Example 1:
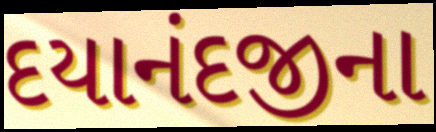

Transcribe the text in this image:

દયાનંદજીના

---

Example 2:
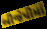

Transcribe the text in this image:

બીજેપીમાં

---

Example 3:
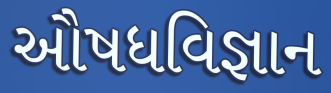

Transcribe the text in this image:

ઔષધવિજ્ઞાન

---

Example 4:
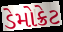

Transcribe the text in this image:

ડેમોક્રેટ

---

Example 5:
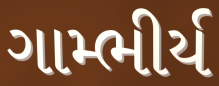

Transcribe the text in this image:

ગામ્ભીર્ય